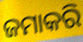
ଜମାକରି